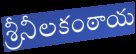
శ్రీనీలకంఠాయ